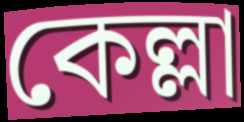
কেল্লা